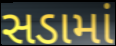
સડામાં